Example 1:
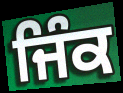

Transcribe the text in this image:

ਜਿੰਕ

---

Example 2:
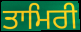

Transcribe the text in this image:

ਤਾਮਿਰੀ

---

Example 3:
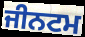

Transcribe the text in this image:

ਜੀਨਟਮ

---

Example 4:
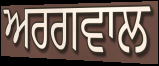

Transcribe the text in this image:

ਅਰਗਵਾਲ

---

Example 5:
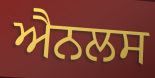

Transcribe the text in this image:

ਐਨਲਸ